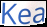
Kea